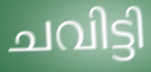
ചവിട്ടി